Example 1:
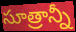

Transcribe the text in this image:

సూత్రాన్నీ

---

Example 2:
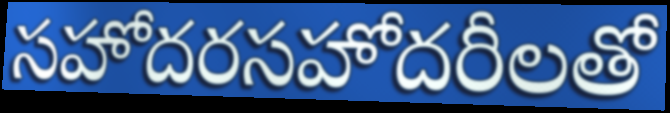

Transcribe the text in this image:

సహోదరసహోదరీలతో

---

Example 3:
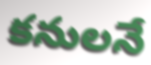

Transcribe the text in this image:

కనులనే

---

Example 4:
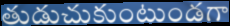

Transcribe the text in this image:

తుడుచుకుంటుండగా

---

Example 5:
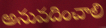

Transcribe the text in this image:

అనువదించాలి